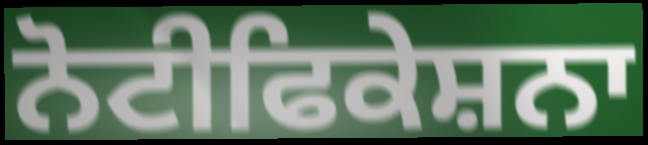
ਨੋਟੀਫਿਕੇਸ਼ਨਾ